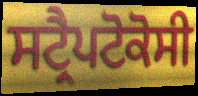
ਸਟ੍ਰੈਪਟੋਕੋਸੀ